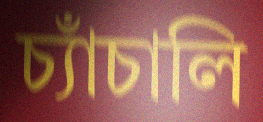
চ্যাঁচালি